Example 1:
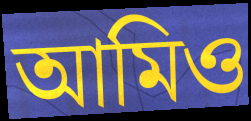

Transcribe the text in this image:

আমিও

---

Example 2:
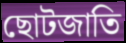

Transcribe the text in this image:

ছোটজাতি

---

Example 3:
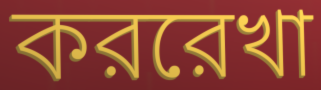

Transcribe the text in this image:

কররেখা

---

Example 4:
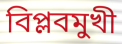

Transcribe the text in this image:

বিপ্লবমুখী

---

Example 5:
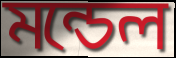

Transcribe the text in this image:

মন্ডেল